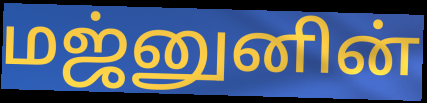
மஜ்னுனின்